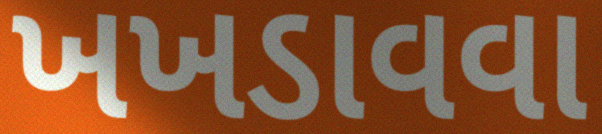
ખખડાવવા